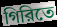
গিরিতে